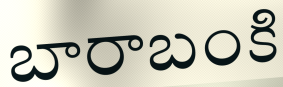
బారాబంకి